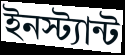
ইনস্ট্যান্ট